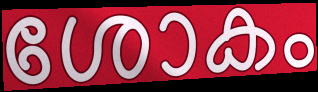
ശോകം